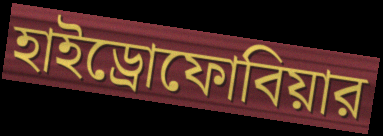
হাইড্রোফোবিয়ার